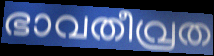
ഭാവതീവ്രത